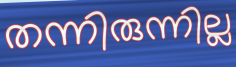
തന്നിരുന്നില്ല